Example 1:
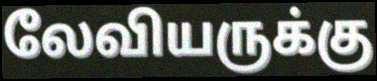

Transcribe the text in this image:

லேவியருக்கு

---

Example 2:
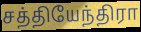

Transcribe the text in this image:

சத்தியேந்திரா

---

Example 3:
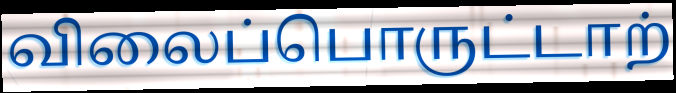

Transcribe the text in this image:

விலைப்பொருட்டாற்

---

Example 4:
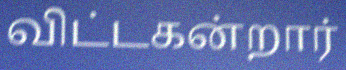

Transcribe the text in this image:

விட்டகன்றார்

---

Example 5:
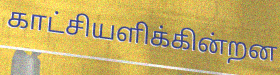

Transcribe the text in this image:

காட்சியளிக்கின்றன